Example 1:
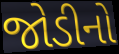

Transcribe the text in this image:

જોડીનો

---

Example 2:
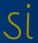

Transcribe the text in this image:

ડાં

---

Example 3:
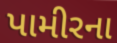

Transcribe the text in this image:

પામીરના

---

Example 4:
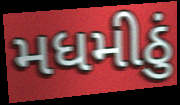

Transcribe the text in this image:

મધમીઠું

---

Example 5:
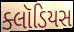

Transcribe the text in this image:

ક્લૉડિયસ